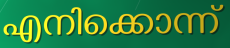
എനിക്കൊന്ന്